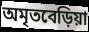
অমৃতবেড়িয়া